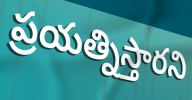
ప్రయత్నిస్తారని